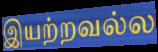
இயற்றவல்ல